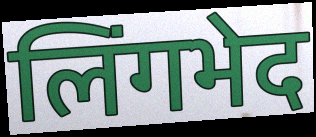
लिंगभेद